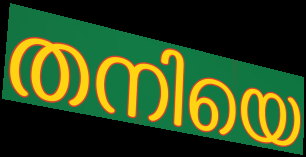
തനിയെ